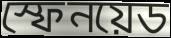
স্ফেনয়েড